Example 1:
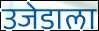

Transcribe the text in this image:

उजेडाला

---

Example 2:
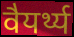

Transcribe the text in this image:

वैयर्थ्य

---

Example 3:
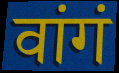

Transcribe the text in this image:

वांगं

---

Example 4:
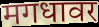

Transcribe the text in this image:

मगधावर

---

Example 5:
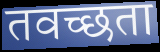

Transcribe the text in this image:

तवच्छता